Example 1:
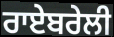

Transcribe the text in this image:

ਰਾਏਬਰੇਲੀ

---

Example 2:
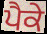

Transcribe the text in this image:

ਪੈਕੇ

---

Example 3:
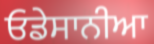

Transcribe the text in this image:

ਓਡੇਸਾਨੀਆ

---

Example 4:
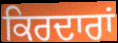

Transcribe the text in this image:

ਕਿਰਦਾਰਾਂ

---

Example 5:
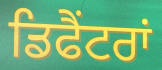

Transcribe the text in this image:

ਡਿਫੈਂਟਰਾਂ